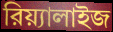
রিয়্যালাইজ